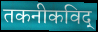
तकनीकविद्